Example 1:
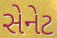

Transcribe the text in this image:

સેનેટ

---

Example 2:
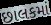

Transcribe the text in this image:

છાલકમાં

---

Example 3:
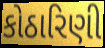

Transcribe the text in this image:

કોઠારિણી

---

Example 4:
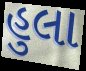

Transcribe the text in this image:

હુલા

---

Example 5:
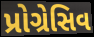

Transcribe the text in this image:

પ્રોગ્રેસિવ